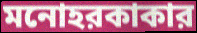
মনোহরকাকার